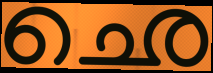
ഛെ